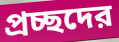
প্রচ্ছদের